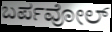
ಬರ್ಪವೋಲ್